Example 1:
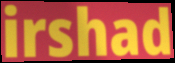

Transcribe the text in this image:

irshad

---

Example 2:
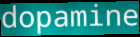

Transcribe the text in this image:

dopamine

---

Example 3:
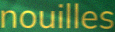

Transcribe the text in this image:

nouilles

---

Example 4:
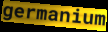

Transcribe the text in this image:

germanium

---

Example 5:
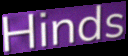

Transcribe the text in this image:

Hinds